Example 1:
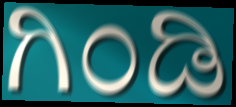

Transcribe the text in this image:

ಗಿಂಡಿ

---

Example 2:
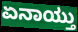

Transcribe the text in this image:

ಏನಾಯ್ತು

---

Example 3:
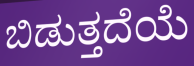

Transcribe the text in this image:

ಬಿಡುತ್ತದೆಯೆ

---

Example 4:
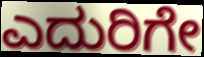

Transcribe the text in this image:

ಎದುರಿಗೇ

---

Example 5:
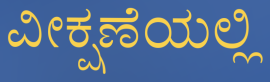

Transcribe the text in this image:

ವೀಕ್ಷಣೆಯಲ್ಲಿ